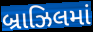
બ્રાઝિલમાં